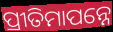
ପ୍ରୀତିମାପନ୍ନେ